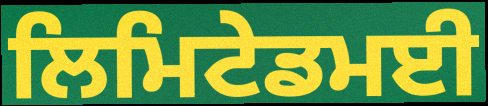
ਲਿਮਿਟੇਡਮਈ